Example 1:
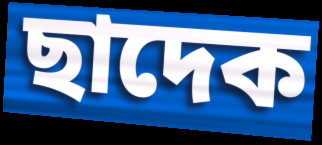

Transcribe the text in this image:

ছাদেক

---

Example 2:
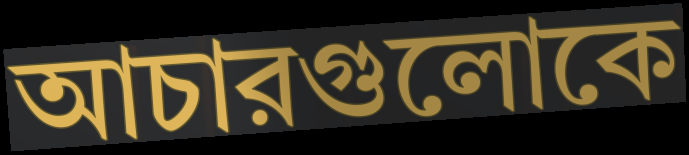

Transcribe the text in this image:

আচারগুলোকে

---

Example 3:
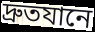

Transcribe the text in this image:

দ্রুতযানে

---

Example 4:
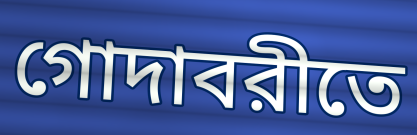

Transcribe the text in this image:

গোদাবরীতে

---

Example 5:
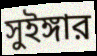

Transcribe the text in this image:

সুইঙ্গার